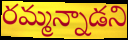
రమ్మన్నాడని